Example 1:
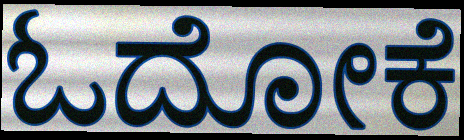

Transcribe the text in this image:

ಓದೋಕೆ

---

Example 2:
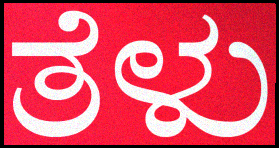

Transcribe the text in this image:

ತೆಳು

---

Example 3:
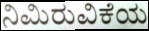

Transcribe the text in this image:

ನಿಮಿರುವಿಕೆಯ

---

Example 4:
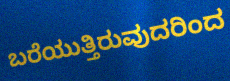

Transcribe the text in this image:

ಬರೆಯುತ್ತಿರುವುದರಿಂದ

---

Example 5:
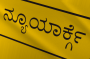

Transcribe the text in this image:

ನ್ಯೂಯಾರ್ಕ್ಗೆ